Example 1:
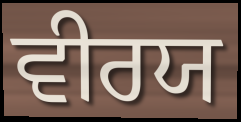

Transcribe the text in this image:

ਵੀਰਯ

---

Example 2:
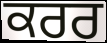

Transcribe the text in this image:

ਕਰਰ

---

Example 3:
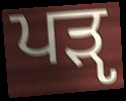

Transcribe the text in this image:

ਪੜੵ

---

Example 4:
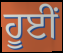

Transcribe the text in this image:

ਹੂਈਂ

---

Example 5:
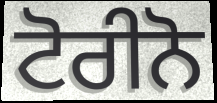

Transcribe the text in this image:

ਟੋਰੀਨੋ